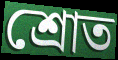
শ্ৰোত